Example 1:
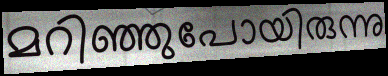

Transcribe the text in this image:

മറിഞ്ഞുപോയിരുന്നു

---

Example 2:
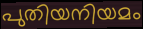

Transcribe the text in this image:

പുതിയനിയമം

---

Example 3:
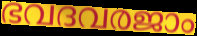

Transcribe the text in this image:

ഭവദവരജാം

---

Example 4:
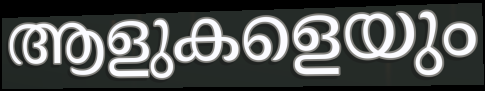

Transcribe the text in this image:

ആളുകളെയും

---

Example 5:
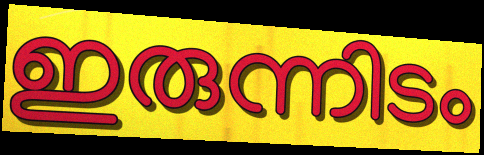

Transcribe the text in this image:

ഇരുന്നിടം